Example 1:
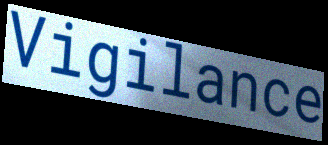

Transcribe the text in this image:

Vigilance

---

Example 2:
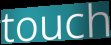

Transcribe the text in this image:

touch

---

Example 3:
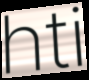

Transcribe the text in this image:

hti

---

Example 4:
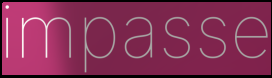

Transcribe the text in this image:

impasse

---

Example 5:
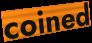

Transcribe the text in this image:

coined